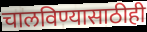
चालविण्यासाठीही